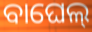
ବାଘେଲ୍